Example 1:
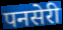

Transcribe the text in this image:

पनसेरी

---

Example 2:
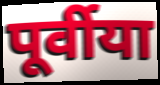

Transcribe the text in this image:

पूर्वीया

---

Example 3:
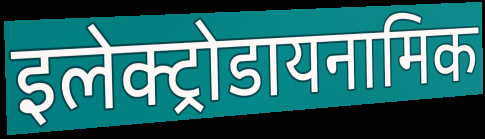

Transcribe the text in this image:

इलेक्ट्रोडायनामिक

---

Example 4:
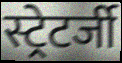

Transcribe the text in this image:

स्ट्रेटर्जी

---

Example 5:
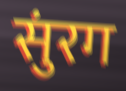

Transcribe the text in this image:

सुंरग